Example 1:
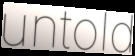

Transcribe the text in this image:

untold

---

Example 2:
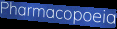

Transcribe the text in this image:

Pharmacopoeia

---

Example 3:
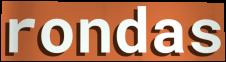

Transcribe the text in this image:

rondas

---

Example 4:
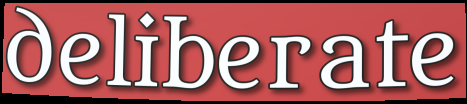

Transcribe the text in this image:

deliberate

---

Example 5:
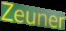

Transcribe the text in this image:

Zeuner